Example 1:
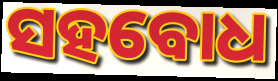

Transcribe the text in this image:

ସହବୋଧ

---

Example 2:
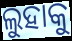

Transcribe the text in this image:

ଲୁହାକୁ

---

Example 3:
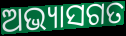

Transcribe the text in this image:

ଅଭ୍ଯାସଗତ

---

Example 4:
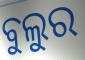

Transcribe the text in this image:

ବୁଲୁର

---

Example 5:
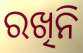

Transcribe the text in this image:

ରଖିନି